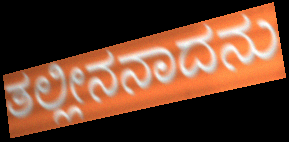
ತಲ್ಲೀನನಾದನು